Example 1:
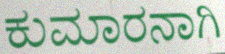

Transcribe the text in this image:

ಕುಮಾರನಾಗಿ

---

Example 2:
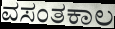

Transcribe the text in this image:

ವಸಂತಕಾಲ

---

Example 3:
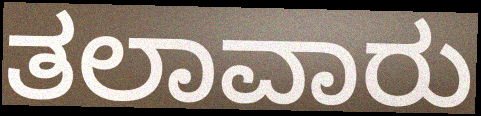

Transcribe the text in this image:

ತಲಾವಾರು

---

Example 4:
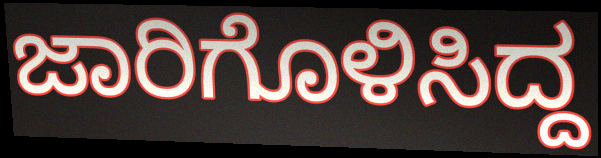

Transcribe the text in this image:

ಜಾರಿಗೊಳಿಸಿದ್ದ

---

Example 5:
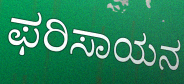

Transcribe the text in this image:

ಫರಿಸಾಯನ